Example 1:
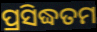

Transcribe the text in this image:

ପ୍ରସିଦ୍ଧତମ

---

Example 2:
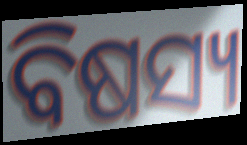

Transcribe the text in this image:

ବିଷସ୍ୟ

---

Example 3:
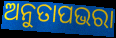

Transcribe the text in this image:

ଅନୁତାପଭରା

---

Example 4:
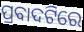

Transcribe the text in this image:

ପ୍ରବାଦଟିରେ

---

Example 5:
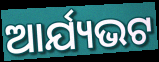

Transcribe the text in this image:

ଆର୍ଯ୍ୟଭଟ